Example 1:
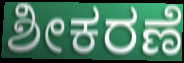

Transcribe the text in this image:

ಶೀಕರಣೆ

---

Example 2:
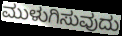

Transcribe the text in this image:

ಮುಳುಗಿಸುವುದು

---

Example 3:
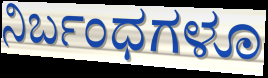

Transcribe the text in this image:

ನಿರ್ಬಂಧಗಳೂ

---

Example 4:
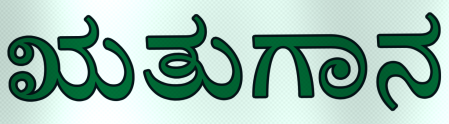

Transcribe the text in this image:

ಋತುಗಾನ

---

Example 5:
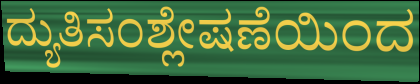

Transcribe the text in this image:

ದ್ಯುತಿಸಂಶ್ಲೇಷಣೆಯಿಂದ